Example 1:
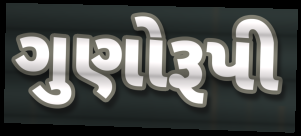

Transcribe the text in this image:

ગુણોરૂપી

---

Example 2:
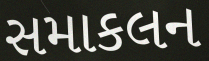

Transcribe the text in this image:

સમાકલન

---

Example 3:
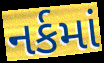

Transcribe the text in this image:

નર્કમાં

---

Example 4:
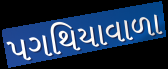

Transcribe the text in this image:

પગથિયાવાળા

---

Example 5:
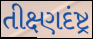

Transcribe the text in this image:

તીક્ષ્ણદંષ્ટ્ર